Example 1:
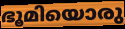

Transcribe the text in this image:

ഭൂമിയൊരു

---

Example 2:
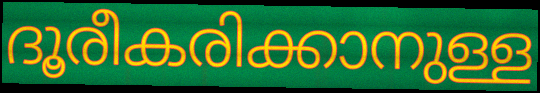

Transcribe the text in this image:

ദൂരീകരിക്കാനുള്ള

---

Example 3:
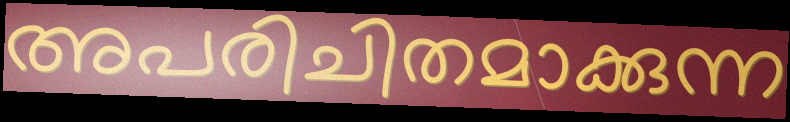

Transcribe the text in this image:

അപരിചിതമാക്കുന്ന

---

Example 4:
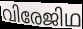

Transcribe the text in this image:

വിരേജിഥ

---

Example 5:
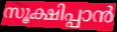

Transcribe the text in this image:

സൂക്ഷിപ്പാൻ